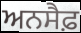
ਅਨਸੈਫ਼